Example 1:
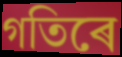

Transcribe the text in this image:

গতিৰে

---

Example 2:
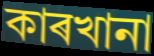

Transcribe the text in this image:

কাৰখানা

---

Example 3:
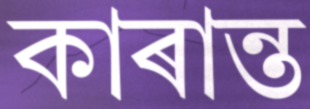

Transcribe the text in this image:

কাৰান্ত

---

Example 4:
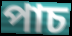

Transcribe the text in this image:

পাচ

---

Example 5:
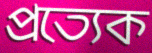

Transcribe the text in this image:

প্ৰত্যেক